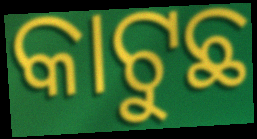
କାଟୁଛ